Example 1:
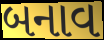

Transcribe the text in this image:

બનાવ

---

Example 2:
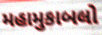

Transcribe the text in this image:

મહામુકાબલો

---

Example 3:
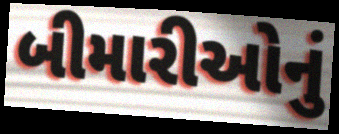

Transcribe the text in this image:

બીમારીઓનું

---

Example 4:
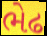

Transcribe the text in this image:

ભેઢ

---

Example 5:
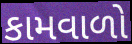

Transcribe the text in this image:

કામવાળો